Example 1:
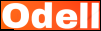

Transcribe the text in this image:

Odell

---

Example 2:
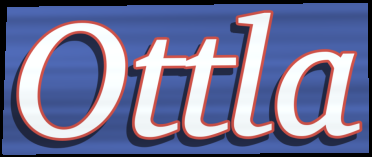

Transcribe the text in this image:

Ottla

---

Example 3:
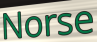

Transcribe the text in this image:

Norse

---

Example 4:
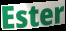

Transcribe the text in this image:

Ester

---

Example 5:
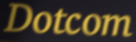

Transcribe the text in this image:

Dotcom